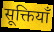
सूक्तियाँ